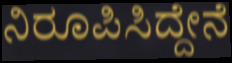
ನಿರೂಪಿಸಿದ್ದೇನೆ